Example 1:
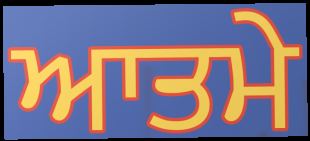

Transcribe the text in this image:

ਆਤਮੇ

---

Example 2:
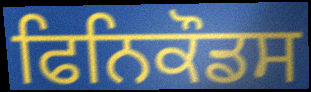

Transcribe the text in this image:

ਫਿਨਿਕੌਡਸ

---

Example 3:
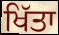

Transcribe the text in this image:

ਖਿੱਤਾ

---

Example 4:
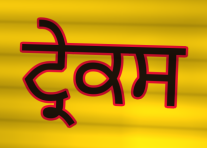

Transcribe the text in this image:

ਟ੍ਰੇਕਸ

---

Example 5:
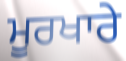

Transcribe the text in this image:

ਮੂਰਖਾਰੇ